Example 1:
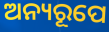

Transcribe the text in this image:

ଅନ୍ୟରୂପେ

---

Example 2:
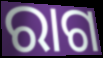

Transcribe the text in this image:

ରାଗ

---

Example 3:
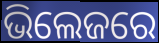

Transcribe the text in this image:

ଭିଲେଜରେ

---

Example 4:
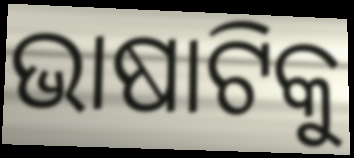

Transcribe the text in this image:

ଭାଷାଟିକୁ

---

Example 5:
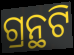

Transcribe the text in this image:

ଗ୍ରନ୍ଥଟି